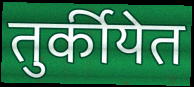
तुर्कीयेत